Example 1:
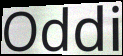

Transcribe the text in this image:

Oddi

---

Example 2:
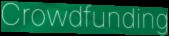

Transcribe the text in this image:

Crowdfunding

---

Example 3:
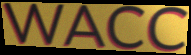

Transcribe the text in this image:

WACC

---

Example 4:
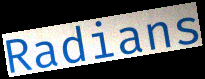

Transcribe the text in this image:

Radians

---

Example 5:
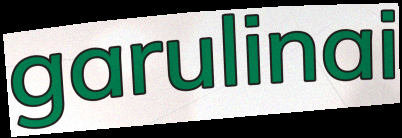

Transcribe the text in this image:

garulinai